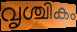
വൃശ്ചികം